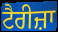
ਟੈਰੀਜ਼ਾ